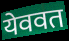
येववत